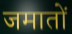
जमातों